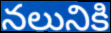
నలునికి